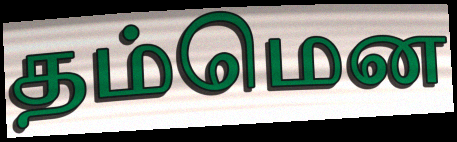
தம்மென